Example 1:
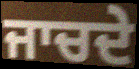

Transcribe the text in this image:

ਜਾਚਦੇ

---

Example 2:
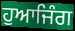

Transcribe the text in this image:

ਹੁਆਜਿੰਗ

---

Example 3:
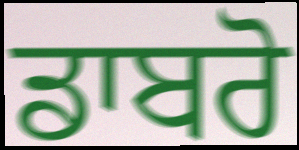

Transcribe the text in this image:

ਡਾਬਰੋ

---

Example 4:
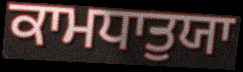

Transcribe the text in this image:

ਕਾਮਧਾਤੁਯਾ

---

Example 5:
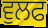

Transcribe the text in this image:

ਵੁਲਫ